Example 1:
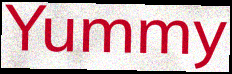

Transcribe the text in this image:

Yummy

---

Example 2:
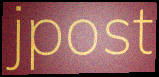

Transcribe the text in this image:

jpost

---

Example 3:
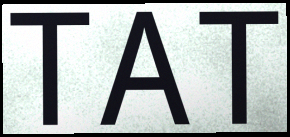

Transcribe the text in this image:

TAT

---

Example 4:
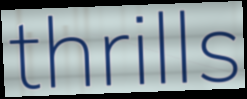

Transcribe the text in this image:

thrills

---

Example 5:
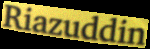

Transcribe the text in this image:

Riazuddin